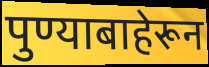
पुण्याबाहेरून